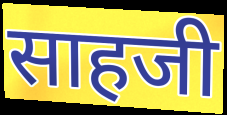
साहजी